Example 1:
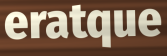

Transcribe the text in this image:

eratque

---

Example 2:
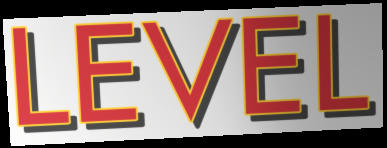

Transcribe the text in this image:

LEVEL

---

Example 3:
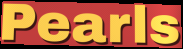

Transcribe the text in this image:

Pearls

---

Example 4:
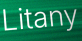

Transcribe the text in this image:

Litany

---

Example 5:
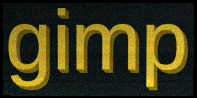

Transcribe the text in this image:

gimp